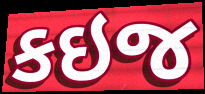
કઇજ